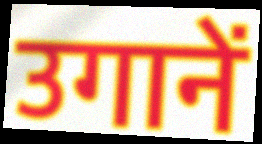
उगानें